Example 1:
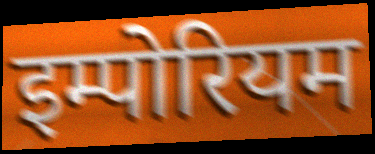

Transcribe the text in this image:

इम्पोरियम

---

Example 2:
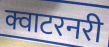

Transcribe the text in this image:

क्वाटरनरी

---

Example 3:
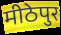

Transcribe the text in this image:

मीठेपुर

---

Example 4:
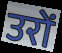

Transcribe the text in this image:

उरों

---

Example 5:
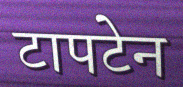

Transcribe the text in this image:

टापटेन